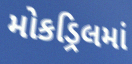
મોકડ્રિલમાં